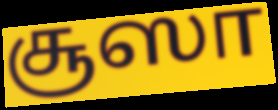
சூஸா